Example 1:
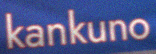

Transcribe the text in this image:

kankuno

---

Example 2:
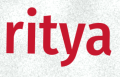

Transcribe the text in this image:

ritya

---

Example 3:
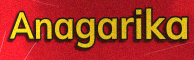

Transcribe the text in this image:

Anagarika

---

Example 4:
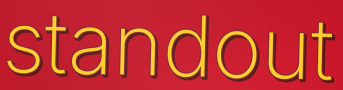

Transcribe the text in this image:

standout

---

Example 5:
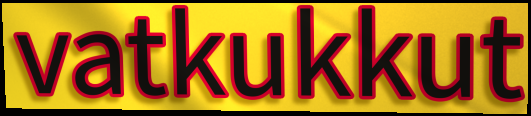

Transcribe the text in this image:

vatkukkut